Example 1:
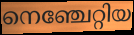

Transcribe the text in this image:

നെഞ്ചേറ്റിയ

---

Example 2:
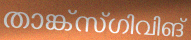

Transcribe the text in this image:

താങ്ക്സ്ഗിവിങ്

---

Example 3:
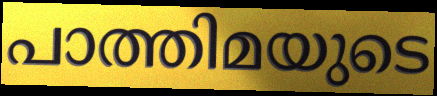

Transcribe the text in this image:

പാത്തിമയുടെ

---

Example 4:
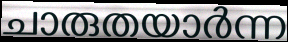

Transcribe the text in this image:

ചാരുതയാർന്ന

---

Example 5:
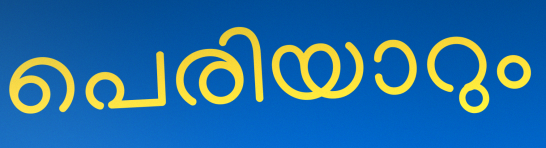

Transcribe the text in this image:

പെരിയാറും